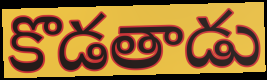
కొడతాడు